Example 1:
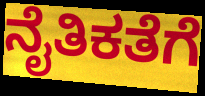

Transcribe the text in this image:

ನೈತಿಕತೆಗೆ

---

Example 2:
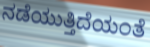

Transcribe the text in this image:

ನಡೆಯುತ್ತಿದೆಯಂತೆ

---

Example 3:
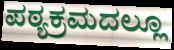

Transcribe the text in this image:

ಪಠ್ಯಕ್ರಮದಲ್ಲೂ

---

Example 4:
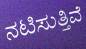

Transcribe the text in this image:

ನಟಿಸುತ್ತಿವೆ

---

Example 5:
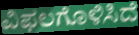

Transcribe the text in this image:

ವಿಫಲಗೊಳಿಸಿದೆ